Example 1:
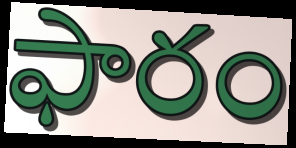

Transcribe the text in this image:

ఫారం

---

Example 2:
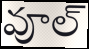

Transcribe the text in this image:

వూల్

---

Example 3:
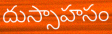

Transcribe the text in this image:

దుస్సాహసం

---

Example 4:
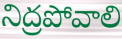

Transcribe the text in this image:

నిద్రపోవాలి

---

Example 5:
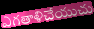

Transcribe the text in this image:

ఎగతాళిచేయుచు